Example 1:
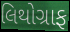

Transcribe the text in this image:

લિથોગ્રાફ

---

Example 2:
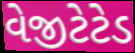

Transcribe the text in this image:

વેજીટેટેડ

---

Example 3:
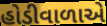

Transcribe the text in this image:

હોડીવાળાએ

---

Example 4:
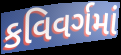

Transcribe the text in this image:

કવિવર્ગમાં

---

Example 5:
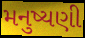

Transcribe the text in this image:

મનુષ્યણી